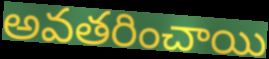
అవతరించాయి